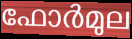
ഫോർമുല